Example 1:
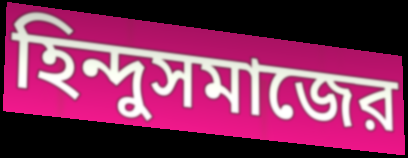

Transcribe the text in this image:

হিন্দুসমাজের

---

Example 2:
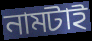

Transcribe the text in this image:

নামটাই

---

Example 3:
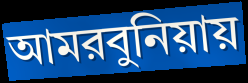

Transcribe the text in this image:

আমরবুনিয়ায়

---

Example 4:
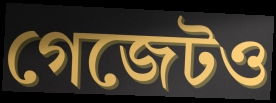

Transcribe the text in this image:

গেজেটও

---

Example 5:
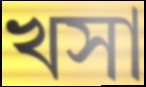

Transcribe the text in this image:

খসা